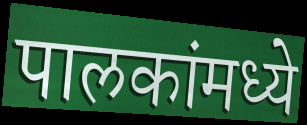
पालकांमध्ये